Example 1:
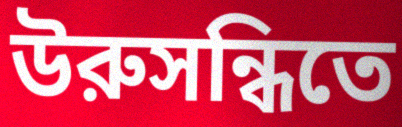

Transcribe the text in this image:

উরুসন্ধিতে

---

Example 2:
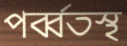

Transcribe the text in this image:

পর্ব্বতস্থ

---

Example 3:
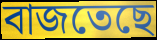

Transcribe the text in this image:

বাজতেছে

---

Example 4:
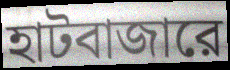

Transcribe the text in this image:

হাটবাজারে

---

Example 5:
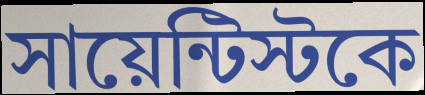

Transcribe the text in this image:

সায়েন্টিস্টকে